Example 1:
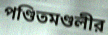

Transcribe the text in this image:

পণ্ডিতমণ্ডলীর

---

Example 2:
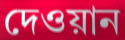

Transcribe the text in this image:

দেওয়ান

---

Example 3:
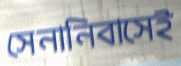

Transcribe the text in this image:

সেনানিবাসেই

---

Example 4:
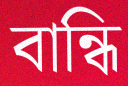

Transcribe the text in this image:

বান্ধি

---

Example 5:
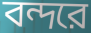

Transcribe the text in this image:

বন্দরে